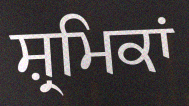
ਸ਼੍ਰਮਿਕਾਂ